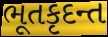
ભૂતકૃદન્ત